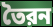
তৈরন